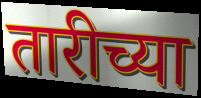
तारीच्या